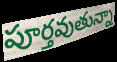
పూర్తవుతున్నా